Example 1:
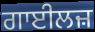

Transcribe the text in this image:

ਗਾਈਲਜ਼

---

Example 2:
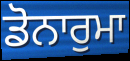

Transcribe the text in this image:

ਡੋਨਾਰੁਮਾ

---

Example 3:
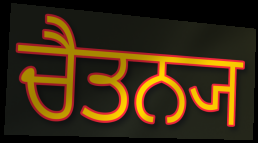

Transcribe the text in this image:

ਚੈਤਨ੍ਯ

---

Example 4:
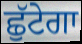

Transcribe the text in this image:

ਛੁੱਟੇਗਾ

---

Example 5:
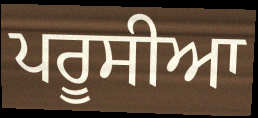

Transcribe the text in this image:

ਪਰੂਸੀਆ